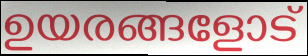
ഉയരങ്ങളോട്